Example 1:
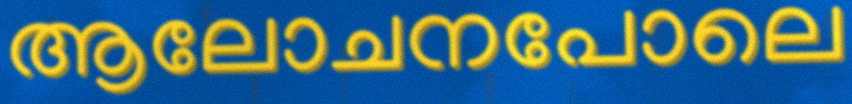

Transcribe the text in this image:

ആലോചനപോലെ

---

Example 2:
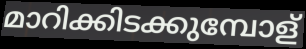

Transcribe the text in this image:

മാറിക്കിടക്കുമ്പോള്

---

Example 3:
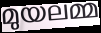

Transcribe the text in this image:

മുയലമ്മ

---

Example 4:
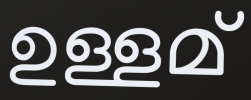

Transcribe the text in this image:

ഉള്ളമ്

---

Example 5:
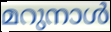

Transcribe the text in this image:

മറുനാൾ